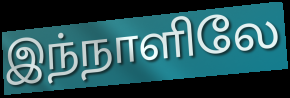
இந்நாளிலே